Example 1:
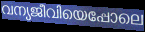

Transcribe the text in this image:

വന്യജീവിയെപ്പോലെ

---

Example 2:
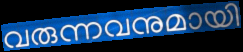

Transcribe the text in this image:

വരുന്നവനുമായി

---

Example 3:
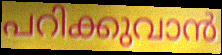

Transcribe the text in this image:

പറിക്കുവാൻ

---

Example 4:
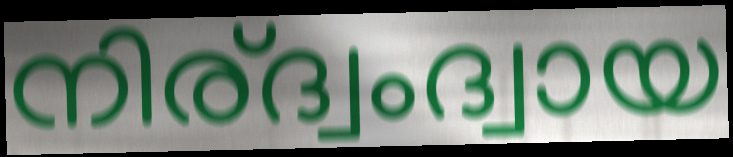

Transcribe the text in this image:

നിര്ദ്വംദ്വായ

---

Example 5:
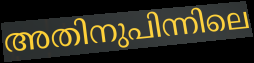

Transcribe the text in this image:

അതിനുപിന്നിലെ